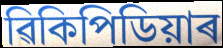
ৱিকিপিডিয়াৰ